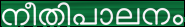
നീതിപാലനം